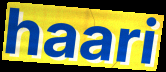
haari